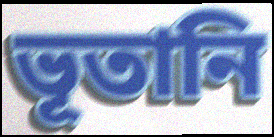
ভূতানি